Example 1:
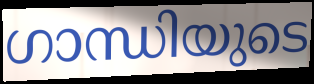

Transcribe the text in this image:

ഗാന്ധിയുടെ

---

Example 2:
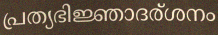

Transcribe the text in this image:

പ്രത്യഭിജ്ഞാദര്ശനം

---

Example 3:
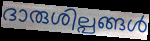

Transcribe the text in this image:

ദാരുശില്പങ്ങൾ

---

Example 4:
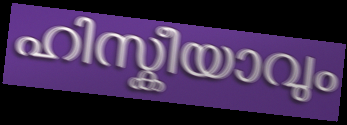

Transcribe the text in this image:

ഹിസ്കീയാവും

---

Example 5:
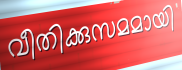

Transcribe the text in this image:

വീതിക്കുസമമായി